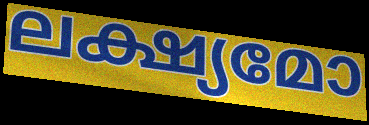
ലക്ഷ്യമോ